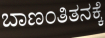
ಬಾಣಂತಿತನಕ್ಕೆ